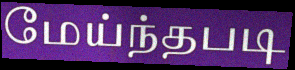
மேய்ந்தபடி